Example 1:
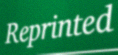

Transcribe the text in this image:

Reprinted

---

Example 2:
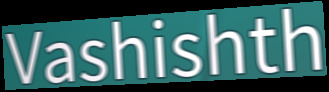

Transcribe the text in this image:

Vashishth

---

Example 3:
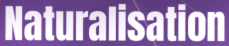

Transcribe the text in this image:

Naturalisation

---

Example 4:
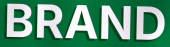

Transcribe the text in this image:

BRAND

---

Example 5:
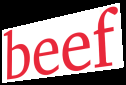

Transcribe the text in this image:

beef